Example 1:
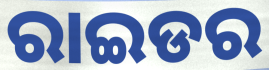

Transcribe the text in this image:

ରାଇଡର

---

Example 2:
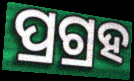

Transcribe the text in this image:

ପ୍ରଗ୍ରହ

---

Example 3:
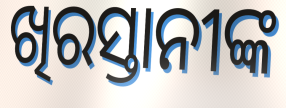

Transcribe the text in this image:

ଖିରସ୍ତାନୀଙ୍କ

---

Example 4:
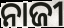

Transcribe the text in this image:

ନାଜୀ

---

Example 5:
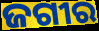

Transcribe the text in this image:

ଜଗୀର